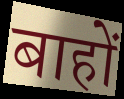
बाहों